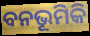
ବନଭୂମିକି